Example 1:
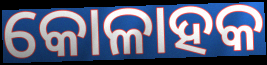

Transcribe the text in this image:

କୋଳାହକ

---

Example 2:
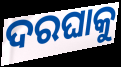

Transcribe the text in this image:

ଦରଘାକୁ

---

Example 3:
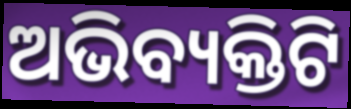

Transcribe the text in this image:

ଅଭିବ୍ୟକ୍ତିଟି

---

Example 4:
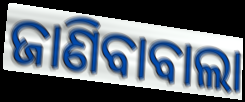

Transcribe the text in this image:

ଜାଣିବାବାଲା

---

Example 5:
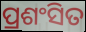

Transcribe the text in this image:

ପ୍ରଶଂସିତ